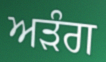
ਅੜੰਗ